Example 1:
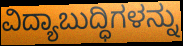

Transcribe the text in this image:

ವಿದ್ಯಾಬುದ್ಧಿಗಳನ್ನು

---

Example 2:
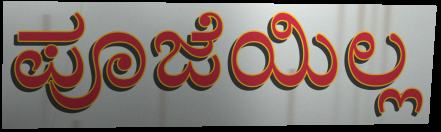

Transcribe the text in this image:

ಪೂಜೆಯಿಲ್ಲ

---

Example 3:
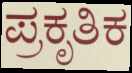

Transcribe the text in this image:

ಪ್ರಕೃತಿಕ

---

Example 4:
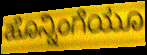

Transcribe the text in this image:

ಹೊನ್ನಿಂಗೆಯೂ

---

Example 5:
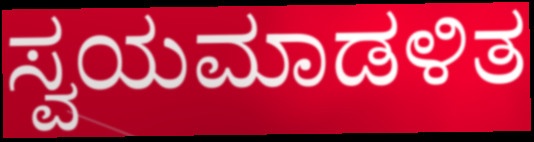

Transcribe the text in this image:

ಸ್ವಯಮಾಡಳಿತ